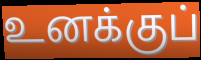
உனக்குப்